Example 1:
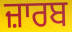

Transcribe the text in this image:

ਜ਼ਾਰਬ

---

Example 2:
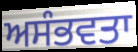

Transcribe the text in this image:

ਅਸੰਭਵਤਾ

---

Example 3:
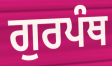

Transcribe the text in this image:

ਗੁਰਪੰਥ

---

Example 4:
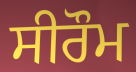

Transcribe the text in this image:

ਸੀਰੌਮ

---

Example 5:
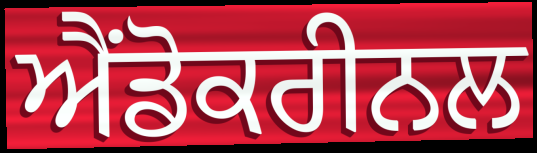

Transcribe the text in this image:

ਐਂਡੋਕਰੀਨਲ